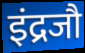
इंद्रजौ